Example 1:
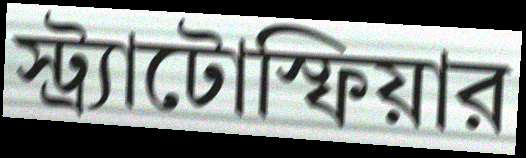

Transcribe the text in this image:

স্ট্র্যাটোস্ফিয়ার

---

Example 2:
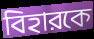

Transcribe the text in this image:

বিহারকে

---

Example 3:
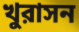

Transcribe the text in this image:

খুরাসন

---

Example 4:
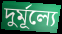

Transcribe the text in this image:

দুর্মূল্যে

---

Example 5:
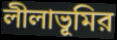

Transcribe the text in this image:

লীলাভূমির